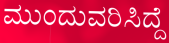
ಮುಂದುವರಿಸಿದ್ದೆ